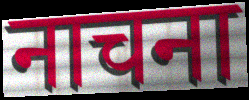
नाचना